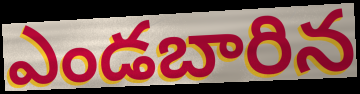
ఎండబారిన